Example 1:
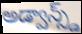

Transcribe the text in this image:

అడ్వాన్స్డ్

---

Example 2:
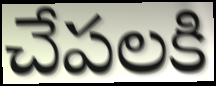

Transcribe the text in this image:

చేపలకి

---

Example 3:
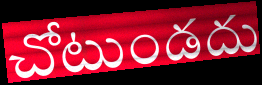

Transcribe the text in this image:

చోటుండదు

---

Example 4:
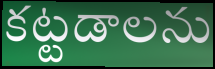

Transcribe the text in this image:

కట్టడాలను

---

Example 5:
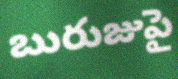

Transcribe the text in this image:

బురుజుపై